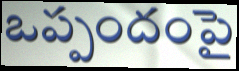
ఒప్పందంపై